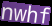
nwhf